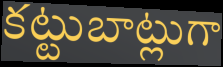
కట్టుబాట్లుగా